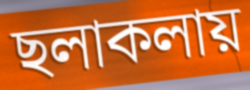
ছলাকলায়